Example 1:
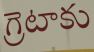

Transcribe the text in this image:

గ్రెటాకు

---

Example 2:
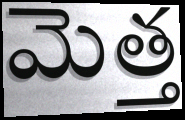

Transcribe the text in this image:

మెత్త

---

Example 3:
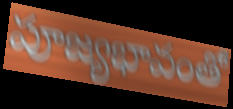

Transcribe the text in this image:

పూజ్యభావంతో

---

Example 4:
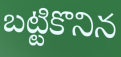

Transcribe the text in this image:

బట్టికొనిన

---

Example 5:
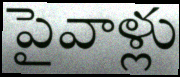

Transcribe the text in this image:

పైవాళ్లు